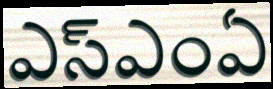
ఎస్ఎంఏ